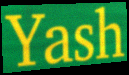
Yash